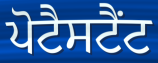
ਪੋਟੈਸਟੈਂਟ